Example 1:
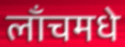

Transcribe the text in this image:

लाँचमधे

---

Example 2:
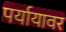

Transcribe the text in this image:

पर्यायावर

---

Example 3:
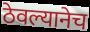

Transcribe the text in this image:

ठेवल्यानेच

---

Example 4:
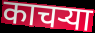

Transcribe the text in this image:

काचऱ्या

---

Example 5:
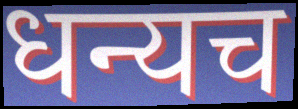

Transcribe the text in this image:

धन्यच